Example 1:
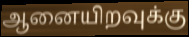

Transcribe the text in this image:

ஆனையிறவுக்கு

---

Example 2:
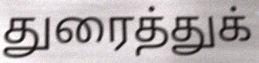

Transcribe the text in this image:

துரைத்துக்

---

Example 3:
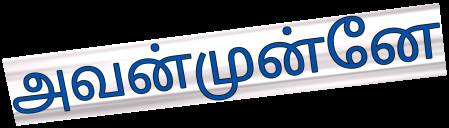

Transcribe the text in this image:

அவன்முன்னே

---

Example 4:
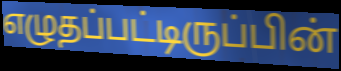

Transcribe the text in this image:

எழுதப்பட்டிருப்பின்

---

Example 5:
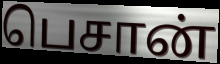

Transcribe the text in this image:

பெசான்